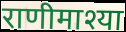
राणीमाश्या